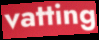
vatting